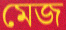
মেজ